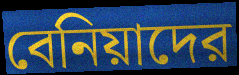
বেনিয়াদের